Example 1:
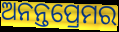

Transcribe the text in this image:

ଅନନ୍ତପ୍ରେମର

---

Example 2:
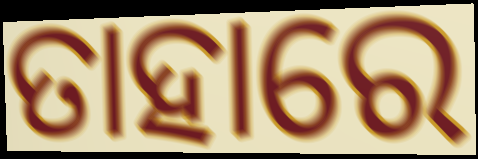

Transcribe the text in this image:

ତାହାରେ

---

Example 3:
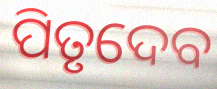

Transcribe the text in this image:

ପିତୃଦେବ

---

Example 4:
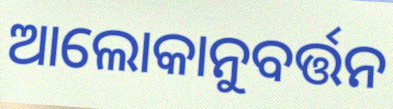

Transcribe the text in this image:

ଆଲୋକାନୁବର୍ତ୍ତନ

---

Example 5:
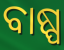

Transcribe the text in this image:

ବାଷ୍ପ